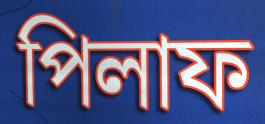
পিলাফ